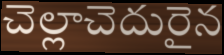
చెల్లాచెదురైన